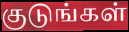
குடுங்கள்